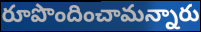
రూపొందించామన్నారు